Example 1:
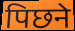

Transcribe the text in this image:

पिछने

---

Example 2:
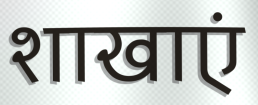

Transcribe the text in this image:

शाखाएं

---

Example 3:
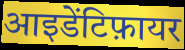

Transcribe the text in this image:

आइडेंटिफ़ायर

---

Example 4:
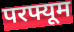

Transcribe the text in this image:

परफ्यूम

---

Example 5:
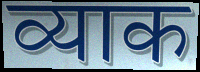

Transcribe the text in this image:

व्याक